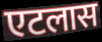
एटलास